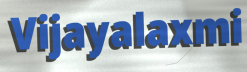
Vijayalaxmi